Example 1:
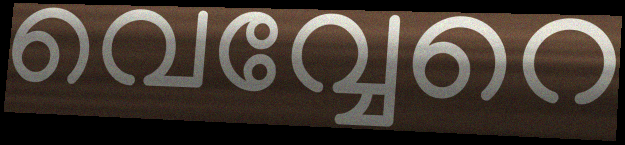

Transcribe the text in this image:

വെവ്വേറെ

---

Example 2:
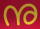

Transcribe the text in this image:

നു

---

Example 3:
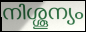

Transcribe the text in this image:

നിശ്ശൂന്യം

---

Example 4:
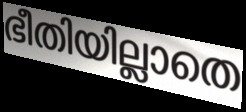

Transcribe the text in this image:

ഭീതിയില്ലാതെ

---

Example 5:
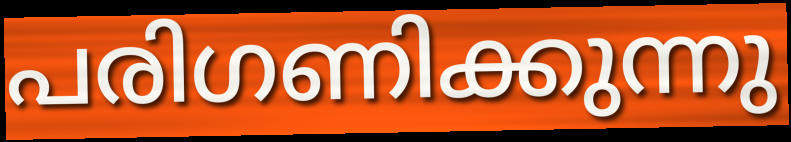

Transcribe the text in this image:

പരിഗണിക്കുന്നു